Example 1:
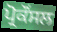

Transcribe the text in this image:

ਪ੍ਰੋਕੌਂਸਲ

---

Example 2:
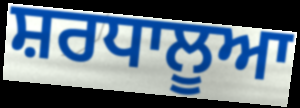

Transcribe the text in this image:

ਸ਼ਰਧਾਲੂਆ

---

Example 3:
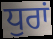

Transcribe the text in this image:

ਧੁਰਾਂ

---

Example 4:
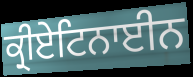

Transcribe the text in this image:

ਕ੍ਰੀਏਟਿਨਾਈਨ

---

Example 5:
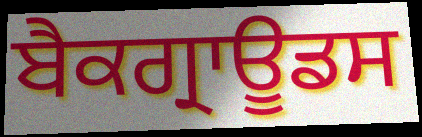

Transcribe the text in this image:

ਬੈਕਗ੍ਰਾਊਡਸ